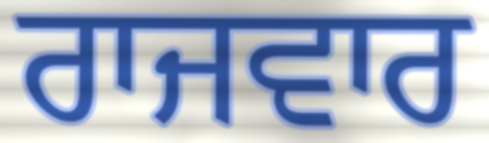
ਰਾਜਵਾਰ